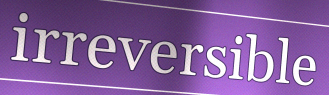
irreversible